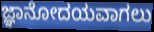
ಜ್ಞಾನೋದಯವಾಗಲು